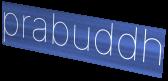
prabuddh